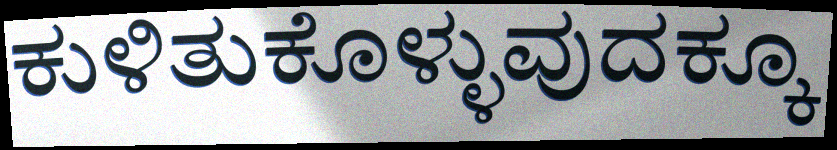
ಕುಳಿತುಕೊಳ್ಳುವುದಕ್ಕೂ